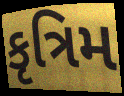
કૃત્રિમ